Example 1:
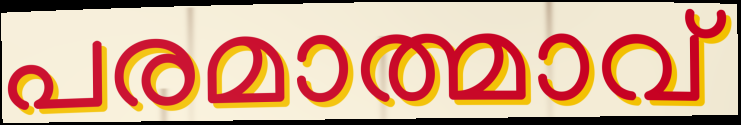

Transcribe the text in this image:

പരമാത്മാവ്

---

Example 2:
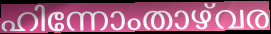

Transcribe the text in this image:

ഹിന്നോംതാഴ്‌വര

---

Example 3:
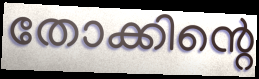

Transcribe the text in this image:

തോക്കിന്റെ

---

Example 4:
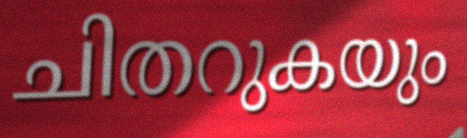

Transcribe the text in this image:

ചിതറുകയും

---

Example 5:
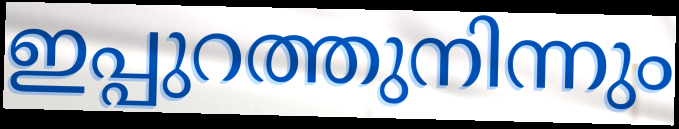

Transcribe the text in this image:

ഇപ്പുറത്തുനിന്നും